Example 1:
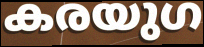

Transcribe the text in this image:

കരയുഗ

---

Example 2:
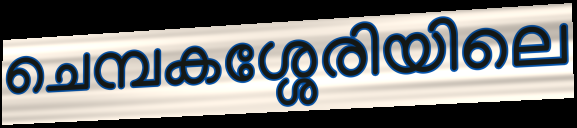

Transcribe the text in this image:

ചെമ്പകശ്ശേരിയിലെ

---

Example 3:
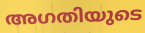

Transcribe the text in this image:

അഗതിയുടെ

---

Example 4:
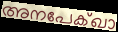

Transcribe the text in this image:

അനപേക്ഖാ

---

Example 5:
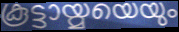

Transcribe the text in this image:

കൂട്ടായ്മയെയും